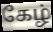
கேழ்